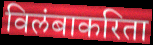
विलंबाकरिता